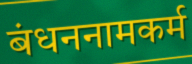
बंधननामकर्म